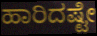
ಹಾರಿದಷ್ಟೇ